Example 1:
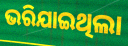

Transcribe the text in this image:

ଭରିଯାଇଥିଲା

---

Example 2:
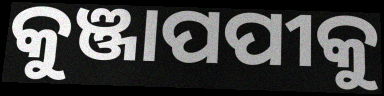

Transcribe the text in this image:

କୁଞ୍ଜାପପୀକୁ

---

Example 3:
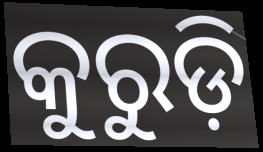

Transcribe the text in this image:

କୁରୁଡ଼ି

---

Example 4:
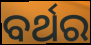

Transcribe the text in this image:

ବର୍ଥର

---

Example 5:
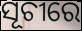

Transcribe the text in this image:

ସୂଚୀରେ